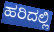
ಹರಿದಲ್ಲಿ